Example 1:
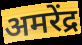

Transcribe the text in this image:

अमरेंद्र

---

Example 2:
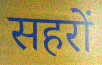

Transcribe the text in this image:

सहरों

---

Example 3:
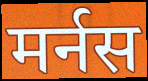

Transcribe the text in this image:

मर्नस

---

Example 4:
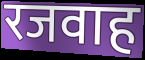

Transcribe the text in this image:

रजवाह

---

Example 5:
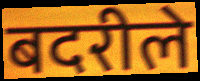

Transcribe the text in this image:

बदरीले